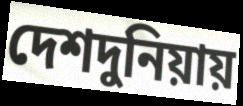
দেশদুনিয়ায়